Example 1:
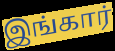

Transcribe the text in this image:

இங்கார்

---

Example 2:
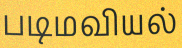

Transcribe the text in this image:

படிமவியல்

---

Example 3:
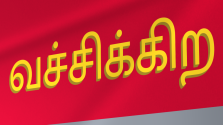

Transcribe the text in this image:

வச்சிக்கிற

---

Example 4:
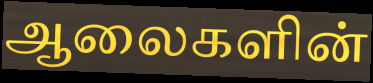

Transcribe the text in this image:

ஆலைகளின்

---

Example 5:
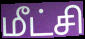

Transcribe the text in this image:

மீட்சி